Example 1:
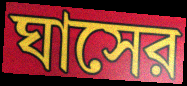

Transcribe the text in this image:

ঘাসের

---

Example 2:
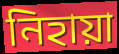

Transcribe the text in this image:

নিহায়া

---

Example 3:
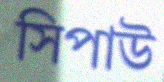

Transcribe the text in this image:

সিপাউ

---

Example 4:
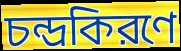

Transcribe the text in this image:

চন্দ্রকিরণে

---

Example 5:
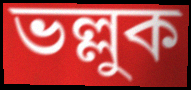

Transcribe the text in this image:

ভল্লুক